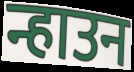
न्हाउन